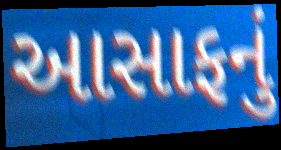
આસાફનું